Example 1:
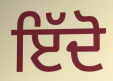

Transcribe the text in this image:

ਇੱਦੋ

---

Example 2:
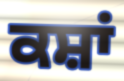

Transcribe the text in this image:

ਕਸ਼ਾਂ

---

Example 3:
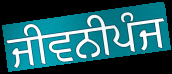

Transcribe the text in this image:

ਜੀਵਨੀਪੰਜ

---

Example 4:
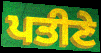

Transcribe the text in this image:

ਪਤੀਣੇ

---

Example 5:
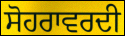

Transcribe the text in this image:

ਸੋਹਰਾਵਰਦੀ